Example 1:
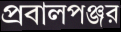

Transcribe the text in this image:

প্রবালপঞ্জর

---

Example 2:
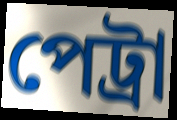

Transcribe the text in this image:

পেট্রা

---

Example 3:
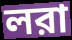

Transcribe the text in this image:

লরা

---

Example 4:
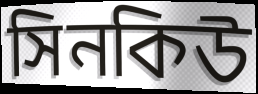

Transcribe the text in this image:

সিনকিউ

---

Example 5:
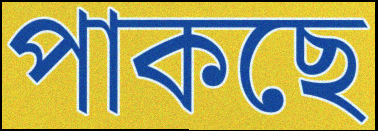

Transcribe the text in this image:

পাকছে